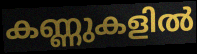
കണ്ണുകളിൽ